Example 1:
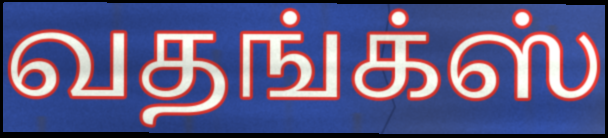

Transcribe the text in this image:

வதங்க்ஸ்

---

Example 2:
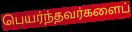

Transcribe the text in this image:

பெயர்ந்தவர்களைப்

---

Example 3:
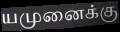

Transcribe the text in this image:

யமுனைக்கு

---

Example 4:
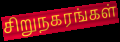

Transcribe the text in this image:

சிறுநகரங்கள்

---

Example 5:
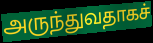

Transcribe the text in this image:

அருந்துவதாகச்